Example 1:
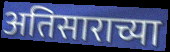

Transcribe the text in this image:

अतिसाराच्या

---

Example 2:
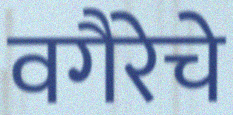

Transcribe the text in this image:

वगैरेचे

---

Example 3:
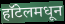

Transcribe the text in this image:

हॉटेलमधून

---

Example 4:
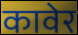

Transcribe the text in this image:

कावेर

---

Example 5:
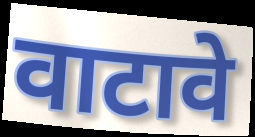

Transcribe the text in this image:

वाटावे